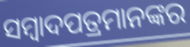
ସମ୍ୱାଦପତ୍ରମାନଙ୍କର